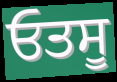
ਓਤਸੂ